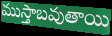
ముస్తాబవుతాయి